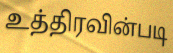
உத்திரவின்படி